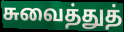
சுவைத்துத்